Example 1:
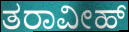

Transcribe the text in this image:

ತರಾವೀಹ್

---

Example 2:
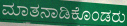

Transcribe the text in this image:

ಮಾತನಾಡಿಕೊಂಡರು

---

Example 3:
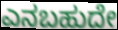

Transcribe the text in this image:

ಎನಬಹುದೇ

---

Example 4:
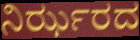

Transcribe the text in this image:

ನಿರ್ಝರದ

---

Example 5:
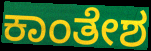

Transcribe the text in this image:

ಕಾಂತೇಶ